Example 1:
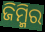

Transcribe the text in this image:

ଜିମ୍ମିର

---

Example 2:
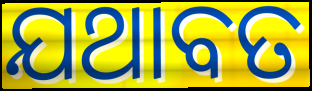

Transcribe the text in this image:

ଯଥାବତ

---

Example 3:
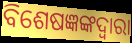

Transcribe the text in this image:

ବିଶେଷଜ୍ଞଙ୍କଦ୍ୱାରା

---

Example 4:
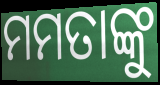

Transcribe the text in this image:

ମମତାଙ୍କୁ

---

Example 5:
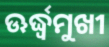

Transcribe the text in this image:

ଊର୍ଦ୍ଧ୍ବମୁଖୀ